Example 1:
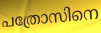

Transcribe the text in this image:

പത്രോസിനെ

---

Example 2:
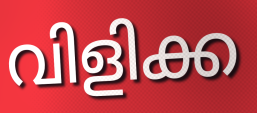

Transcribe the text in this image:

വിളിക്ക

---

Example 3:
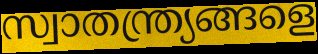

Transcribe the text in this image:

സ്വാതന്ത്ര്യങ്ങളെ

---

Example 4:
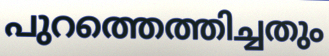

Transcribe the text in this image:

പുറത്തെത്തിച്ചതും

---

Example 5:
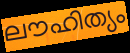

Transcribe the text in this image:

ലൗഹിത്യം